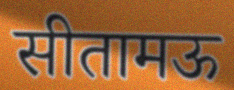
सीतामऊ